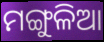
ମଙ୍ଗୁଳିଆ